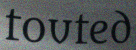
touted